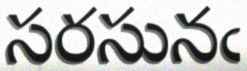
సరసునఁ